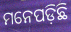
ମନେପଡ଼ିଛି